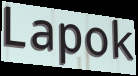
Lapok